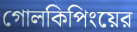
গোলকিপিংয়ের